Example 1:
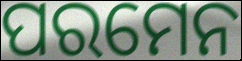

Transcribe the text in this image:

ପରମେନ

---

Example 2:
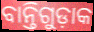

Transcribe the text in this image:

ବାନ୍ତିଗୁଡ଼ାକ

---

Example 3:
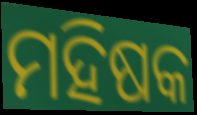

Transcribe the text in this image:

ମହିଷକ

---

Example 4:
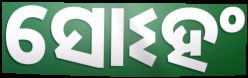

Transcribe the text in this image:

ସୋଽହଂ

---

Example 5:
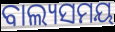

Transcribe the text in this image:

ବାଲ୍ୟସମୟ